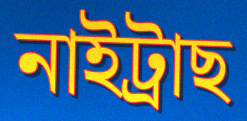
নাইট্ৰাছ